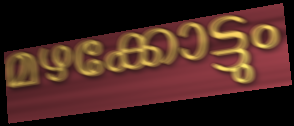
മഴക്കോട്ടും